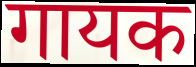
गायक